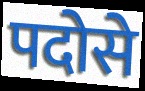
पदोसे